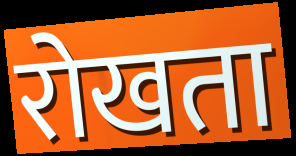
रोखता